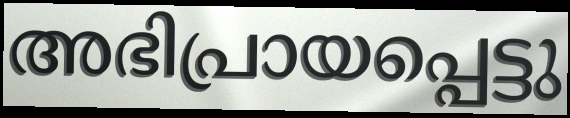
അഭിപ്രായപ്പെട്ടു